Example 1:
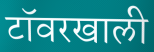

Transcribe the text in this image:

टॉवरखाली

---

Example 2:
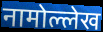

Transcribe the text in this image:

नामोल्लेख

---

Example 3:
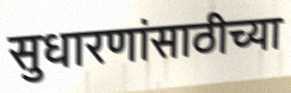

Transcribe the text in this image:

सुधारणांसाठीच्या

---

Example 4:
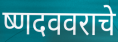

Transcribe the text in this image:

ष्णदववराचे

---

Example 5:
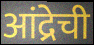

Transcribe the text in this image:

आंद्रेची